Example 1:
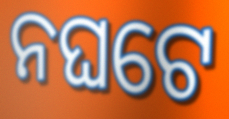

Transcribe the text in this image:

ନଘଟେ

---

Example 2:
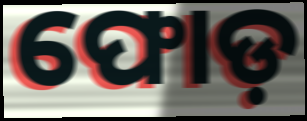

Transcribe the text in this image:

ଫୋଡ଼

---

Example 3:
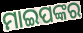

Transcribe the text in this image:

ମାଇପଙ୍କର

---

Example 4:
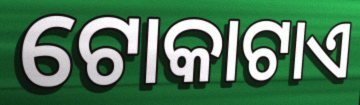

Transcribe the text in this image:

ଟୋକାଟାଏ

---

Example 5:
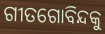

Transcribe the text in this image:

ଗୀତଗୋବିନ୍ଦକୁ